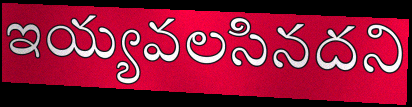
ఇయ్యవలసినదని